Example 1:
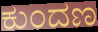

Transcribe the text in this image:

ಕುಂದಣ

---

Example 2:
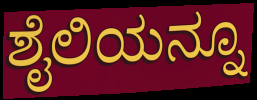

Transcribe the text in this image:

ಶೈಲಿಯನ್ನೂ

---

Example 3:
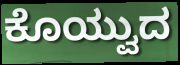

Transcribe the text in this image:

ಕೊಯ್ವುದ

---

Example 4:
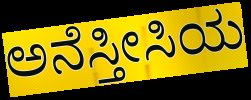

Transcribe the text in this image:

ಅನೆಸ್ತೀಸಿಯ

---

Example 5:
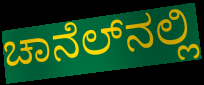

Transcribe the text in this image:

ಚಾನೆಲ್‌ನಲ್ಲಿ